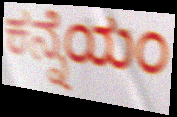
ಕನ್ನೆಯಂ